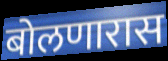
बोलणारास